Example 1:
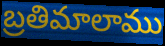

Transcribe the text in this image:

బ్రతిమాలాము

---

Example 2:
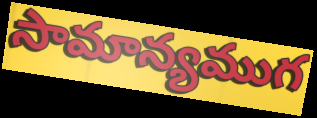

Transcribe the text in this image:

సామాన్యముగ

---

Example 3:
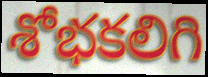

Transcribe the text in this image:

శోభకలిగి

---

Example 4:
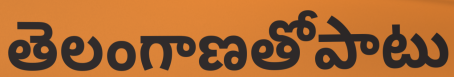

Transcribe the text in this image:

తెలంగాణతోపాటు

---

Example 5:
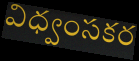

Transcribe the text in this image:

విధ్వంసకర